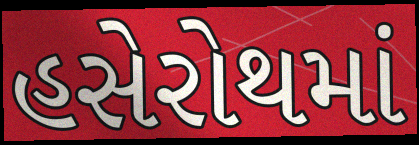
હસેરોથમાં